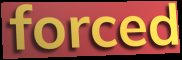
forced